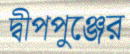
দ্বীপপুঞ্জের